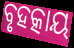
ବୃହତ୍କାୟ